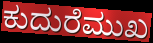
ಕುದುರೆಮುಖ